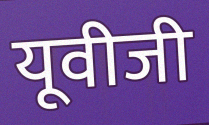
यूवीजी